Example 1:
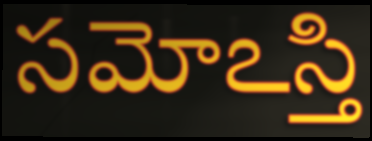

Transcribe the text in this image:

సమోఽస్తి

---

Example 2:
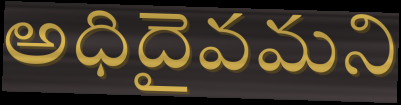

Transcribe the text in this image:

అధిదైవమని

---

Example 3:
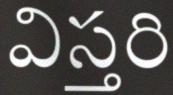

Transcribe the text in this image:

విస్తరి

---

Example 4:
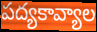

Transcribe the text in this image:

పద్యకావ్యాల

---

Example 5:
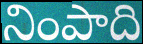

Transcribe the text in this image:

నింపాది